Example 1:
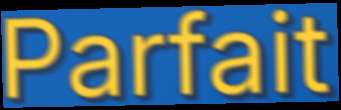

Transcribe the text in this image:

Parfait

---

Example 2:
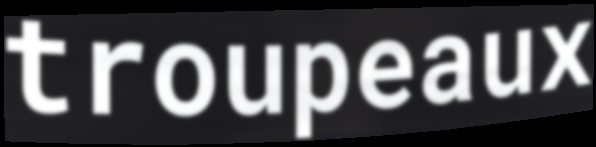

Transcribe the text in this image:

troupeaux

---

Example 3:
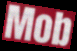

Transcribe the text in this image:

Mob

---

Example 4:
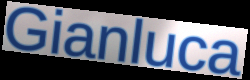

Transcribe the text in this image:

Gianluca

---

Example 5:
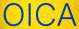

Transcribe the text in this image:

OICA